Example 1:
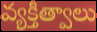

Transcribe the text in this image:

వ్యక్తిత్వాలు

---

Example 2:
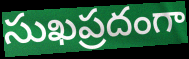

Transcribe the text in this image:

సుఖప్రదంగా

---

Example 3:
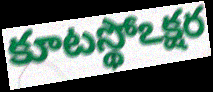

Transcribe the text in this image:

కూటస్థోఽక్షర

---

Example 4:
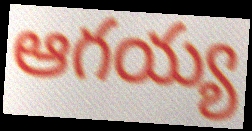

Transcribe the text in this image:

ఆగయ్య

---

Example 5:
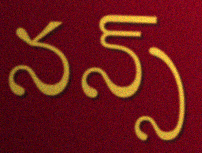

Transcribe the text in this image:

నన్స్